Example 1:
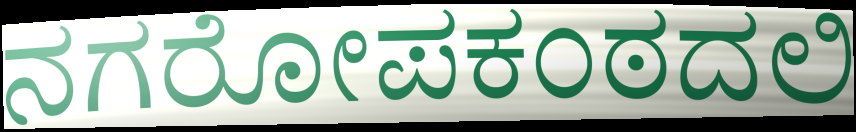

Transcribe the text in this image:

ನಗರೋಪಕಂಠದಲಿ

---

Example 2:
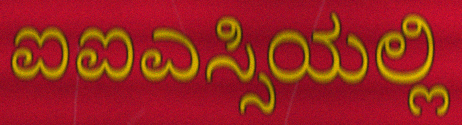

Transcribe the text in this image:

ಐಐಎಸ್ಸಿಯಲ್ಲಿ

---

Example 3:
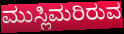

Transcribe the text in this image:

ಮುಸ್ಲಿಮರಿರುವ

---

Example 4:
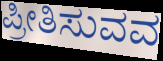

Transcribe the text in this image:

ಪ್ರೀತಿಸುವವ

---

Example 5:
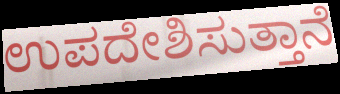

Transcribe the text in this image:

ಉಪದೇಶಿಸುತ್ತಾನೆ